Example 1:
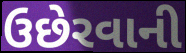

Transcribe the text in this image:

ઉછેરવાની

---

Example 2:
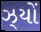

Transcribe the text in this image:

ઝ્યોં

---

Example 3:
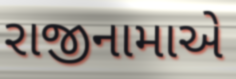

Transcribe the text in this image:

રાજીનામાએ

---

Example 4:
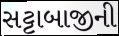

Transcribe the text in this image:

સટ્ટાબાજીની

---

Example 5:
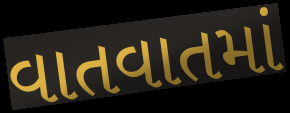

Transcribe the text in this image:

વાતવાતમાં